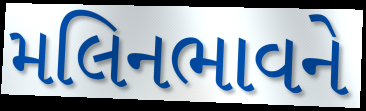
મલિનભાવને